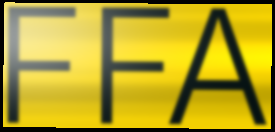
FFA